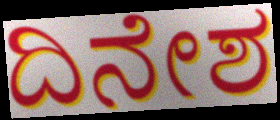
ದಿನೇಶ